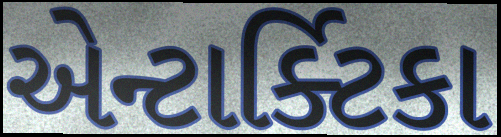
એન્ટાર્ક્ટિકા